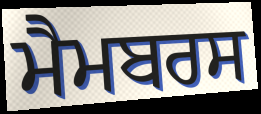
ਮੈਮਬਰਸ